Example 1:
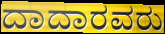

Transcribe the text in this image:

ದಾದಾರವರು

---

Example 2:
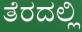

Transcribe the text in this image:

ತೆರದಲ್ಲಿ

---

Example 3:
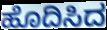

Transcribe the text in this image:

ಹೊದಿಸಿದ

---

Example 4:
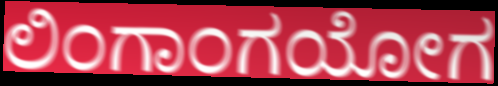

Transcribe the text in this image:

ಲಿಂಗಾಂಗಯೋಗ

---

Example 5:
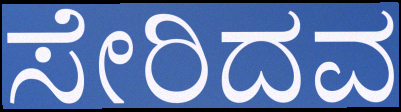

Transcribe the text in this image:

ಸೇರಿದವ